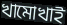
খামোখাই